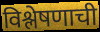
विश्लेषणाची